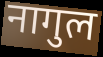
नागुल